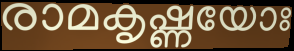
രാമകൃഷ്ണയോഃ